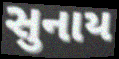
સુનાય